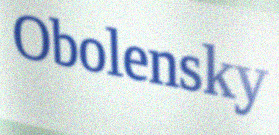
Obolensky